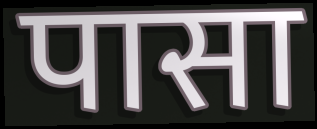
पासा